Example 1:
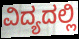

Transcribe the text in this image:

ವಿದ್ಯದಲ್ಲಿ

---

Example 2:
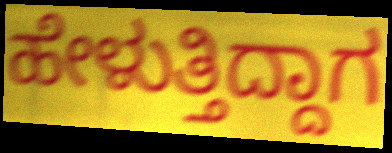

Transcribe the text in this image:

ಹೇಳುತ್ತಿದ್ದಾಗ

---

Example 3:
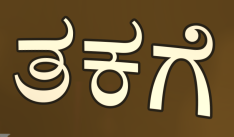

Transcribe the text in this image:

ತಕಗೆ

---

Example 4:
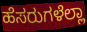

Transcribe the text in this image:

ಹೆಸರುಗಳೆಲ್ಲಾ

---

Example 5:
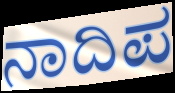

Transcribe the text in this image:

ನಾದಿಪ